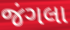
જંગલા